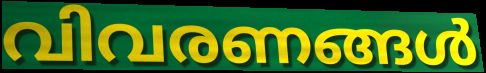
വിവരണങ്ങൾ